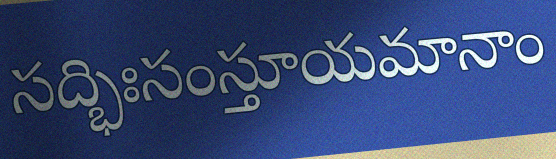
సద్భిఃసంస్తూయమానాం